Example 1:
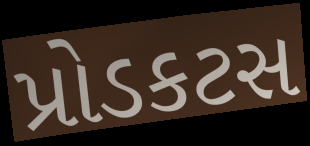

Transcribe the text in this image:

પ્રોડકટસ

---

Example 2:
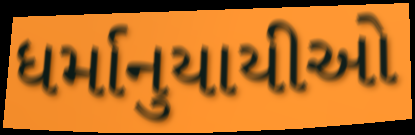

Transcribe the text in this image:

ધર્માનુયાયીઓ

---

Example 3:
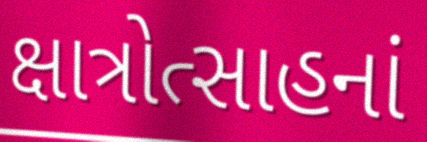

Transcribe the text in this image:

ક્ષાત્રોત્સાહનાં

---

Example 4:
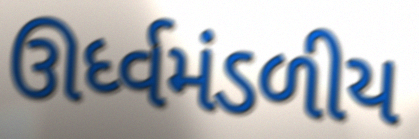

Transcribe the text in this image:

ઊર્ધ્વમંડળીય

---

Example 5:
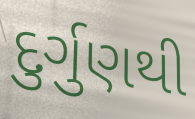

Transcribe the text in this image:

દુર્ગુણથી